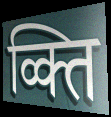
व्क्ति